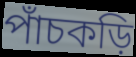
পাঁচকড়ি